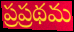
ప్రప్రథమ